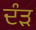
ਦੰੜ